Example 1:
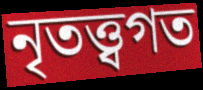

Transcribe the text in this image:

নৃতত্ত্বগত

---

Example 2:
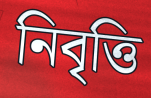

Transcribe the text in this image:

নিবৃত্তি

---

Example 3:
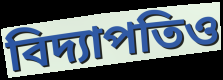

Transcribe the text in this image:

বিদ্যাপতিও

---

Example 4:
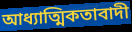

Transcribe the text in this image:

আধ্যাত্মিকতাবাদী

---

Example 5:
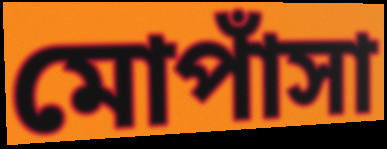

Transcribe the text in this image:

মোপাঁসা